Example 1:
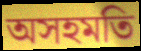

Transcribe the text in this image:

অসহমতি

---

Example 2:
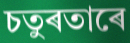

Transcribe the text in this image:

চতুৰতাৰে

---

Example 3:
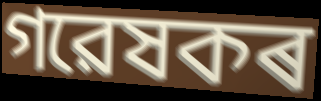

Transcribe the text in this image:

গৱেষকৰ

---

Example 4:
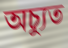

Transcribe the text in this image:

অচ্যুত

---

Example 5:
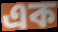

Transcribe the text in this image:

এক